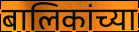
बालिकांच्या